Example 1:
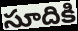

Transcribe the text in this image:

సూదికి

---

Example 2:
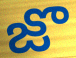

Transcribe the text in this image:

జొ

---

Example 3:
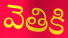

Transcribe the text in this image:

వెతికి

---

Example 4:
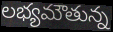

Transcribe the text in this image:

లభ్యమౌతున్న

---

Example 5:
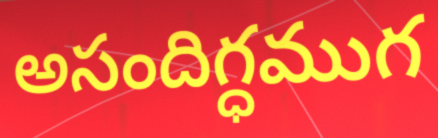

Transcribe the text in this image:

అసందిగ్ధముగ